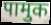
पामुक